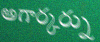
అగార్కర్ను